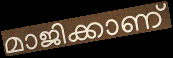
മാജിക്കാണ്